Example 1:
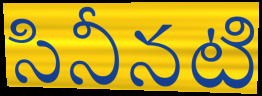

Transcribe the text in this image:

సినీనటి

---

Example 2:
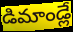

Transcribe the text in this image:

డిమాండ్లే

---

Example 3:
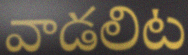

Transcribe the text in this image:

వాడలిట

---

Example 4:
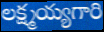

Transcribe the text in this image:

లక్ష్మయ్యగారి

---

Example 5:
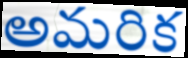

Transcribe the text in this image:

అమరిక